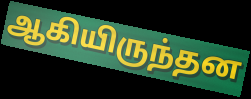
ஆகியிருந்தன